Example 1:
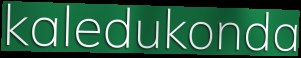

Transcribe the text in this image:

kaledukonda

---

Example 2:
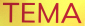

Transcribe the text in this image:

TEMA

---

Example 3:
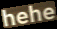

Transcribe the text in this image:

hehe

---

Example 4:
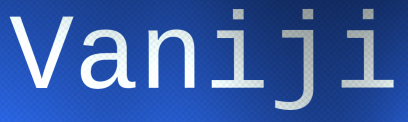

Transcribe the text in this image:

Vaniji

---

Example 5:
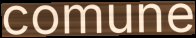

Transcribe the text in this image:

comune